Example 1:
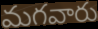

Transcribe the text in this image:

మగవారు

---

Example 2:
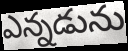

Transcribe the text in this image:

ఎన్నడును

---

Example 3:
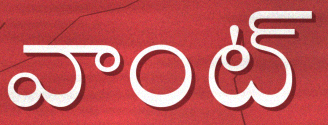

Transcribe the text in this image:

వాంట్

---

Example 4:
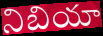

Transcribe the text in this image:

నిబియా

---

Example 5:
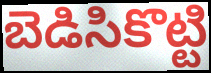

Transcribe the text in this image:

బెడిసికొట్టి